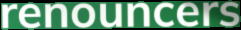
renouncers